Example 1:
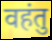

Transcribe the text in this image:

वहंतु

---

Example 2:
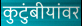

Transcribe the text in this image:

कुटुंबीयांवर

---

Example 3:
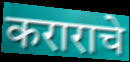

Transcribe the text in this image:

कराराचे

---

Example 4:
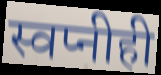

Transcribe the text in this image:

स्वप्नीही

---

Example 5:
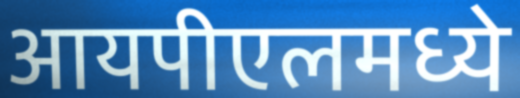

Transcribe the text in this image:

आयपीएलमध्ये